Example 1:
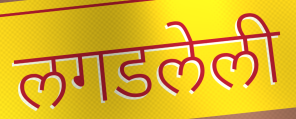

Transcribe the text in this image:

लगडलेली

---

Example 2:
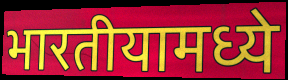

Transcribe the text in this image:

भारतीयामध्ये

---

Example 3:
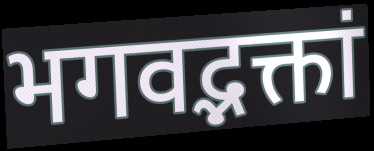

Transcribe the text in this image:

भगवद्भक्तां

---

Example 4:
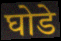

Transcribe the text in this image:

घोडे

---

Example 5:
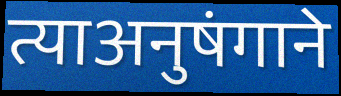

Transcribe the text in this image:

त्याअनुषंगाने